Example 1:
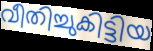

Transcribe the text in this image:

വീതിച്ചുകിട്ടിയ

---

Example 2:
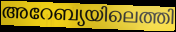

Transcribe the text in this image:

അറേബ്യയിലെത്തി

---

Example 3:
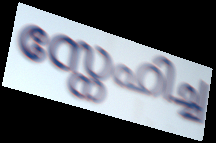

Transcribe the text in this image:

സ്നേഹിച്ച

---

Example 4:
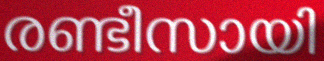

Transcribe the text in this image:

രണ്ടീസായി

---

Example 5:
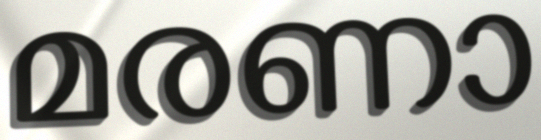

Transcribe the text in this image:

മരണാ